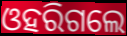
ଓହରିଗଲେ